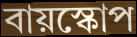
বায়স্কোপ